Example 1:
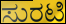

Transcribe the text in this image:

ಸುರಟಿ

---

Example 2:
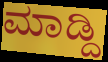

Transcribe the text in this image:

ಮಾಡ್ದಿ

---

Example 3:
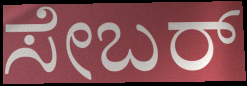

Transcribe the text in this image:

ಸೇಬರ್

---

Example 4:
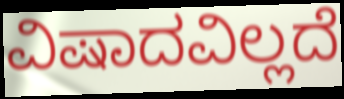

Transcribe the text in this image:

ವಿಷಾದವಿಲ್ಲದೆ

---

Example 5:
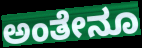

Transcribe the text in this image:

ಅಂತೇನೂ